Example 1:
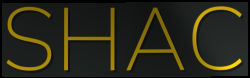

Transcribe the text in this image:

SHAC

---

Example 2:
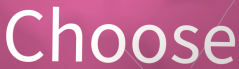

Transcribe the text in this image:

Choose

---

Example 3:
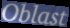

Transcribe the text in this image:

Oblast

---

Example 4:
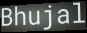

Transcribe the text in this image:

Bhujal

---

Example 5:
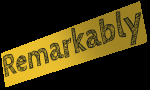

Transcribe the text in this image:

Remarkably